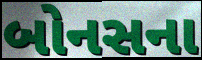
બોનસના